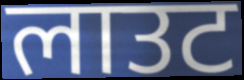
लाउट